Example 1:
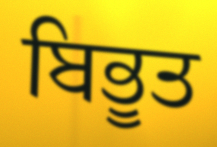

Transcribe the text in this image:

ਬਿਭੂਤ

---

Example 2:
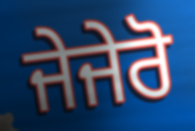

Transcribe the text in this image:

ਜੇਜੇਰੋ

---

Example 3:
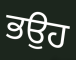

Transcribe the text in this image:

ਭਉਹ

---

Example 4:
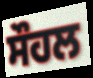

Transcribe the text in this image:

ਸੌਹਲ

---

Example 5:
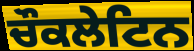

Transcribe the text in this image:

ਚੌਕਲੇਟਿਨ